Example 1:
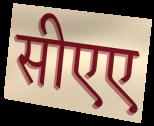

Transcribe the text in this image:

सीएए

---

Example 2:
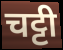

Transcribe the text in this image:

चट्टी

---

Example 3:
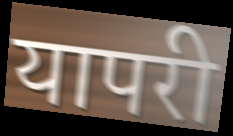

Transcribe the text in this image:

यापरी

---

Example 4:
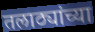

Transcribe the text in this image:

तलाठ्यांच्या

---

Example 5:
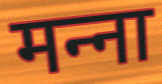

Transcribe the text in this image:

मन्ना